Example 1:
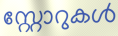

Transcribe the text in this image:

സ്റ്റോറുകൾ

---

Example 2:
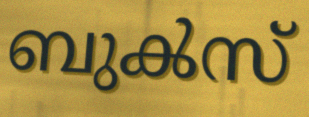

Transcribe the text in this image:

ബുൿസ്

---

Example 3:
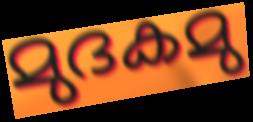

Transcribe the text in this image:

മുദകമു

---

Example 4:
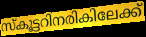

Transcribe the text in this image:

സ്കൂട്ടറിനരികിലേക്ക്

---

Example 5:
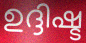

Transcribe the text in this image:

ഉദ്ദിഷ്ട